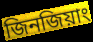
জিনজিয়াং